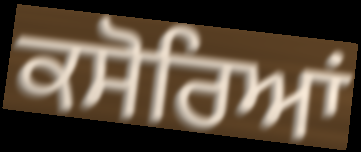
ਕਸੋਰਿਆਂ